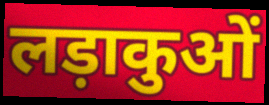
लड़ाकुओं